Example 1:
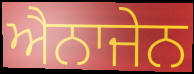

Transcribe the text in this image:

ਐਨਾਜੇਨ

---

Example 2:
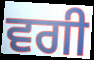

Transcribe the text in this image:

ਵਗੀ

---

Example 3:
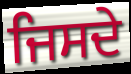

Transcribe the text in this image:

ਜਿਸਦੇ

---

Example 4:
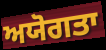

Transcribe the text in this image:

ਅਯੋਗਤਾ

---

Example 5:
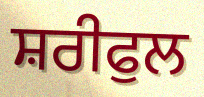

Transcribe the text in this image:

ਸ਼ਰੀਫੁਲ